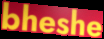
bheshe